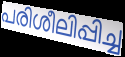
പരിശീലിപ്പിച്ച